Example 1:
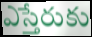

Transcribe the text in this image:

ఎస్తేరుకు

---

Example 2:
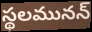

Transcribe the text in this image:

స్థలమునన్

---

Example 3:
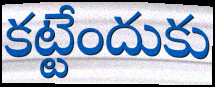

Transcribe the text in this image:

కట్టేందుకు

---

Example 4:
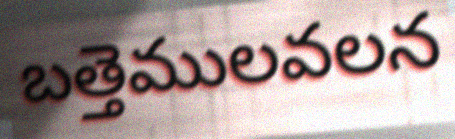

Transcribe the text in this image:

బత్తెములవలన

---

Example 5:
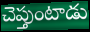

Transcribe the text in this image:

చెప్తుంటాడు